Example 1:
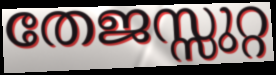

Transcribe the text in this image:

തേജസ്സുറ്റ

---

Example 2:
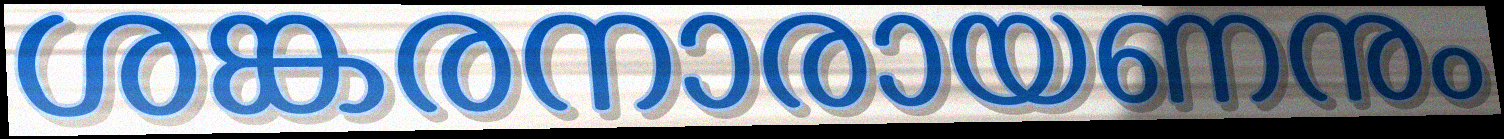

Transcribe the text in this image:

ശങ്കരനാരായണനും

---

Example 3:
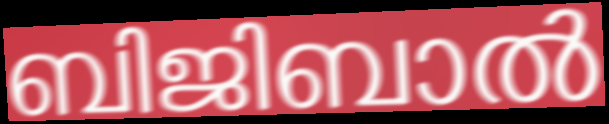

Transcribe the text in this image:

ബിജിബാൽ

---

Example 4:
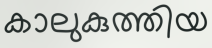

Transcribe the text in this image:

കാലുകുത്തിയ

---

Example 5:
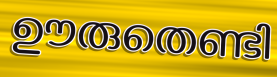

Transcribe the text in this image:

ഊരുതെണ്ടി